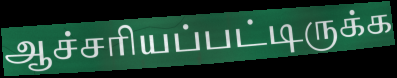
ஆச்சரியப்பட்டிருக்க